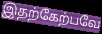
இதற்கேற்பவே